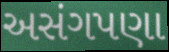
અસંગપણા